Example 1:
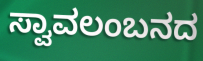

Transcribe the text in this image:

ಸ್ವಾವಲಂಬನದ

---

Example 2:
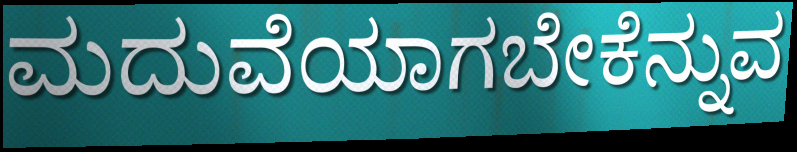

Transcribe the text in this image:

ಮದುವೆಯಾಗಬೇಕೆನ್ನುವ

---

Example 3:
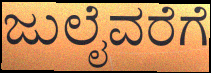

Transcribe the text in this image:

ಜುಲೈವರೆಗೆ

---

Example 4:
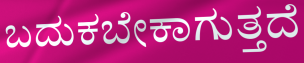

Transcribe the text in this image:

ಬದುಕಬೇಕಾಗುತ್ತದೆ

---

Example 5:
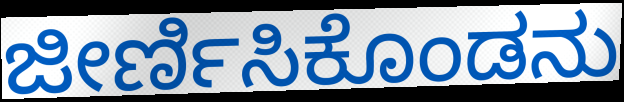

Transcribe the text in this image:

ಜೀರ್ಣಿಸಿಕೊಂಡನು